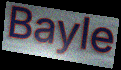
Bayle